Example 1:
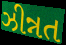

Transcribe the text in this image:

ઝીન્નત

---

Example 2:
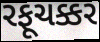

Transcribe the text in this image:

રફૂચક્કર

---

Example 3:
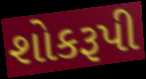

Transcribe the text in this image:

શોકરૂપી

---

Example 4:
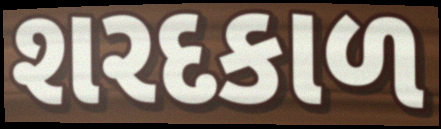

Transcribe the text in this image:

શરદકાળ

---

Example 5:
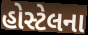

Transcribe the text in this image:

હોસ્ટેલના